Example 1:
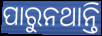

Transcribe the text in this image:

ପାରୁନଥାନ୍ତି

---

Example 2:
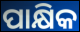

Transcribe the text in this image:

ପାକ୍ଷିକ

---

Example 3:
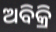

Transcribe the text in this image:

ଅବିକ୍ରି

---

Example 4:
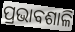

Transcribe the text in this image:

ପ୍ରଭାବଶାଳି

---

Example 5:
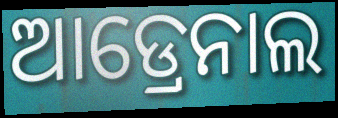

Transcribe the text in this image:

ଆଡ୍ରେନାଲ